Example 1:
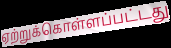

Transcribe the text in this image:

ஏற்றுக்கொள்ளப்பட்டது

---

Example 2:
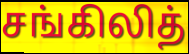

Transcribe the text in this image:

சங்கிலித்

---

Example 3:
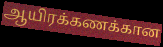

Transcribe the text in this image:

ஆயிரக்கணக்கான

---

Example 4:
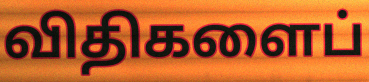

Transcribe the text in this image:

விதிகளைப்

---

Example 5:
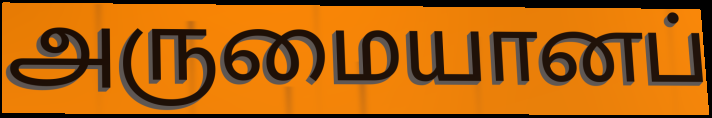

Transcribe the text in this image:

அருமையானப்